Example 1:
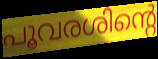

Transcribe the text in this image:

പൂവരശിന്റെ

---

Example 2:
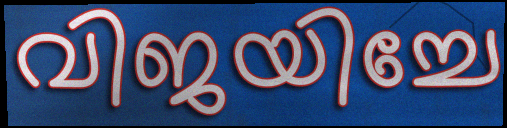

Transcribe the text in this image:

വിജയിച്ചേ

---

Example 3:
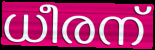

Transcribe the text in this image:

ധീരന്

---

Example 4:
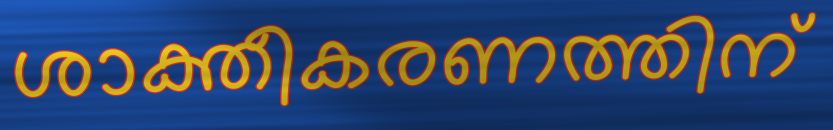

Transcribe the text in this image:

ശാക്തീകരണത്തിന്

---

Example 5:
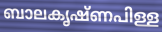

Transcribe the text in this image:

ബാലകൃഷ്ണപിള്ള